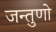
जन्तुणो